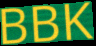
BBK